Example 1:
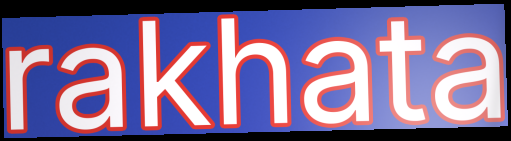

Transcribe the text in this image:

rakhata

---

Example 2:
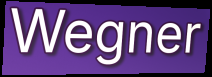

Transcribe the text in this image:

Wegner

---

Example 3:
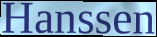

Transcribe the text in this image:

Hanssen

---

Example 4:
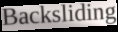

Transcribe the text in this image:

Backsliding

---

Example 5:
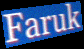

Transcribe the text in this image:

Faruk